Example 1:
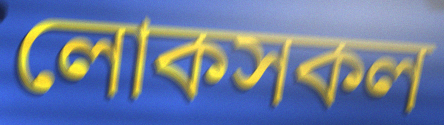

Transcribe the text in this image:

লোকসকল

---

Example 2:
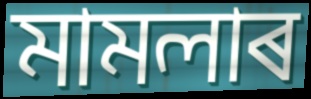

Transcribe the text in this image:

মামলাৰ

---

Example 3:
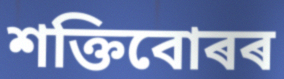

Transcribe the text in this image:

শক্তিবোৰৰ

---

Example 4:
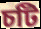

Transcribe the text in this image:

চটি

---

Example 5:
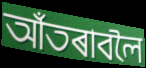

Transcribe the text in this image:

আঁতৰাবলৈ